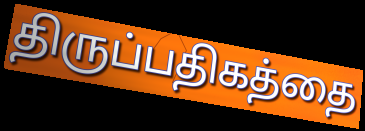
திருப்பதிகத்தை